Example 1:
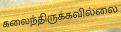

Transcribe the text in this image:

கலைந்திருக்கவில்லை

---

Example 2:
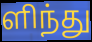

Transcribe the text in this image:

ளிந்து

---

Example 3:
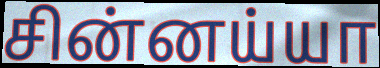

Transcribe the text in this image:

சின்னய்யா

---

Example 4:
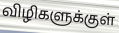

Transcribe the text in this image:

விழிகளுக்குள்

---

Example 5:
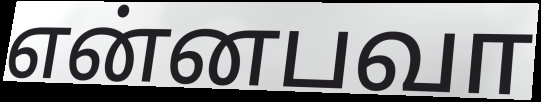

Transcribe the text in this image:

என்னபவா